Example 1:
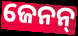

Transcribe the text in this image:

ଜେନନ୍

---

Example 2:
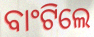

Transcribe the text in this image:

ବାଂଟିଲେ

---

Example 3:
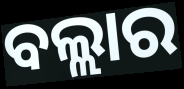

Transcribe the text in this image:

ବଲ୍ଲାର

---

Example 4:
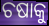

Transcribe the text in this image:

ଚଷାକୁ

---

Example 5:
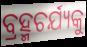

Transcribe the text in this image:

ବ୍ରହ୍ମଚର୍ଯ୍ୟକୁ